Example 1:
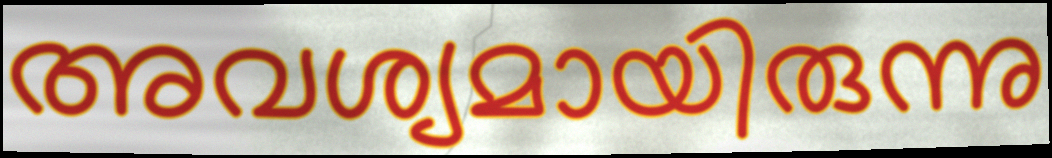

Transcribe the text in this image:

അവശ്യമായിരുന്നു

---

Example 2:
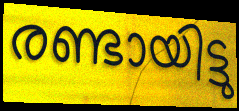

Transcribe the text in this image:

രണ്ടായിട്ടു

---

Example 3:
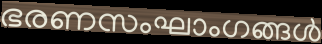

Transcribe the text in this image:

ഭരണസംഘാംഗങ്ങൾ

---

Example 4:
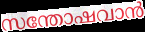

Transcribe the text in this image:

സന്തോഷവാൻ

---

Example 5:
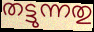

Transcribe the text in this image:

തട്ടുന്നതു